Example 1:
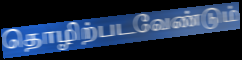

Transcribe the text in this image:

தொழிற்படவேண்டும்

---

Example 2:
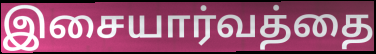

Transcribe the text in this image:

இசையார்வத்தை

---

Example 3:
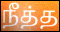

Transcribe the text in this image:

நீத்த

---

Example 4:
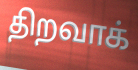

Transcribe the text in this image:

திறவாக்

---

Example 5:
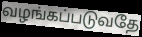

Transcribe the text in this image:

வழங்கப்படுவதே